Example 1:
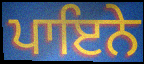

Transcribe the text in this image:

ਪਾਇਨੇ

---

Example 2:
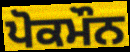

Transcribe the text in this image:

ਪੋਕਮੌਨ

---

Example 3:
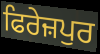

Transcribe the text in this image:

ਫਿਰੇਜ਼ਪੁਰ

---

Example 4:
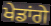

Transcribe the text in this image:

ਖੇਡਾਂਗੇ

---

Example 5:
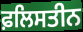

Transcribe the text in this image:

ਫ਼ਲਿਸਤੀਨ